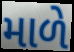
માળે